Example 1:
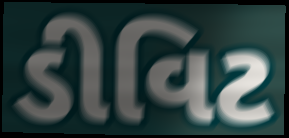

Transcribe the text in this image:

ડીવિટ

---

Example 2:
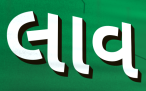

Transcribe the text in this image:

લાવ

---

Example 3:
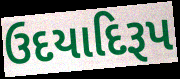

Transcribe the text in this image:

ઉદયાદિરૂપ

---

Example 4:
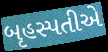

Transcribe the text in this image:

બૃહસ્પતીએ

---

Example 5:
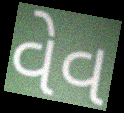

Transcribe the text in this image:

વેવ